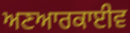
ਅਣਆਰਕਾਈਵ